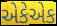
એકેએક